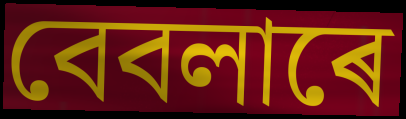
বেবলাৰে